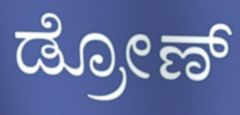
ಡ್ರೋಣ್